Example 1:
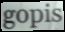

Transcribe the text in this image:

gopis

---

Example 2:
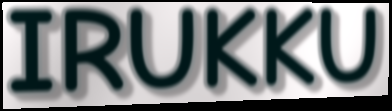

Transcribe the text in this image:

IRUKKU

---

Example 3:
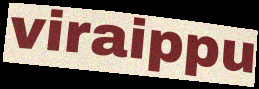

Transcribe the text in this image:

viraippu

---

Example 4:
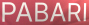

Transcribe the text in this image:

PABARI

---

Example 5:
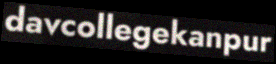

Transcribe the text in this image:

davcollegekanpur